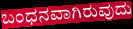
ಬಂಧನವಾಗಿರುವುದು